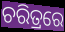
ଚରିତ୍ରରେ